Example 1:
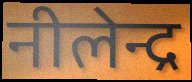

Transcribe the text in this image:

नीलेन्द्र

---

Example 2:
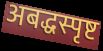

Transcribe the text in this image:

अबद्धस्पृष्ट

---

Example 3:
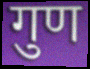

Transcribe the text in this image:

गुण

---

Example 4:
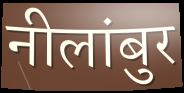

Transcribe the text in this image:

नीलांबुर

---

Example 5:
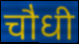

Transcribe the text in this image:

चौधी